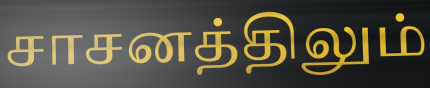
சாசனத்திலும்